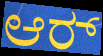
ಆರ್‍